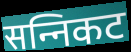
सन्निकट